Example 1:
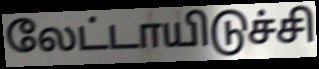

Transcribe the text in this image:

லேட்டாயிடுச்சி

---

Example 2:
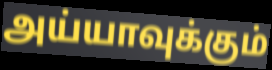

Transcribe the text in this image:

அய்யாவுக்கும்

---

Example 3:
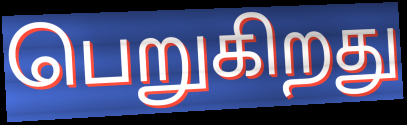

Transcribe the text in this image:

பெறுகிறது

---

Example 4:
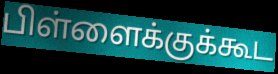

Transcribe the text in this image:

பிள்ளைக்குக்கூட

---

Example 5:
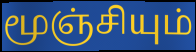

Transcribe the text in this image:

மூஞ்சியும்